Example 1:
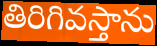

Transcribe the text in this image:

తిరిగివస్తాను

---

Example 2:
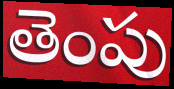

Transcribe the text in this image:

తెంపు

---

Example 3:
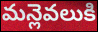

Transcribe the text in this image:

మన్లెవలుకి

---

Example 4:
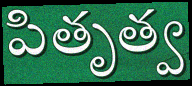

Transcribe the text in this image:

పితృత్వ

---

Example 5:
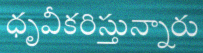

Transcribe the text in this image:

ధృవీకరిస్తున్నారు